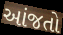
આંજતો